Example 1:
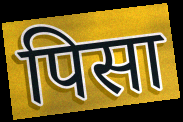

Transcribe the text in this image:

पिसा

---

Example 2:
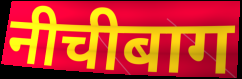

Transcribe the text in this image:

नीचीबाग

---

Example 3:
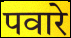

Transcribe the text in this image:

पवारे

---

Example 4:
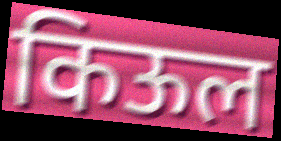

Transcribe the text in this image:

किऊल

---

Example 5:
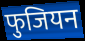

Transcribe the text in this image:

फुजियन